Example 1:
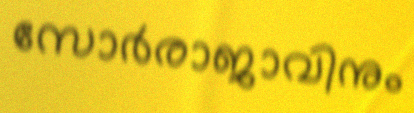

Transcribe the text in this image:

സോർരാജാവിനും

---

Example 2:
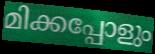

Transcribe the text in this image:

മിക്കപ്പോളും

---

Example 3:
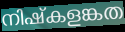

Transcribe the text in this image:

നിഷ്‌കളങ്കത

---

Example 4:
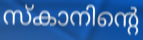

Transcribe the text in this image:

സ്കാനിന്റെ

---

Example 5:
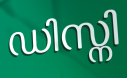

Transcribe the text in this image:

ഡിസ്നി